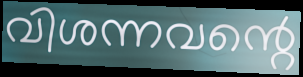
വിശന്നവന്റെ